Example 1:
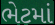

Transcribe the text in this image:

ભેટમાં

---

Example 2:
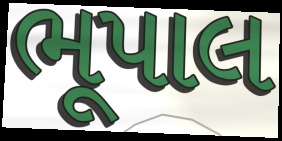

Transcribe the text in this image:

ભૂપાલ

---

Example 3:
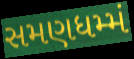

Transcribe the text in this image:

સમણધમ્મં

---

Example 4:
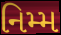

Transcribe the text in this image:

નિમ્મ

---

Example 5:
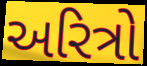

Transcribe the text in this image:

અરિત્રો